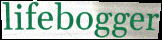
lifebogger